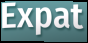
Expat